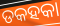
ଡକହକା